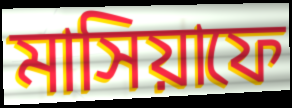
মাসিয়াফে